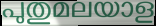
പുതുമലയാള